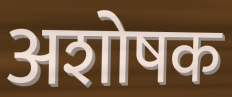
अशोषक